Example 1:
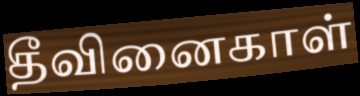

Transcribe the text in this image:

தீவினைகாள்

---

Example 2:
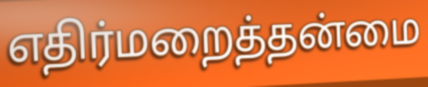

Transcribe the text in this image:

எதிர்மறைத்தன்மை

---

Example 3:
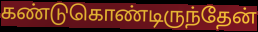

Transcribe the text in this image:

கண்டுகொண்டிருந்தேன்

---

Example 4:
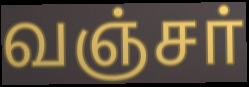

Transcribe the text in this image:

வஞ்சர்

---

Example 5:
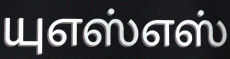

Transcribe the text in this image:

யுஎஸ்எஸ்